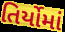
તિર્યોમાં